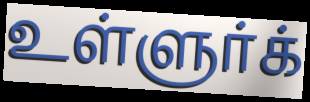
உள்ளுர்க்